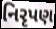
નિરૃપણ